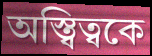
অস্ত্বিত্বকে